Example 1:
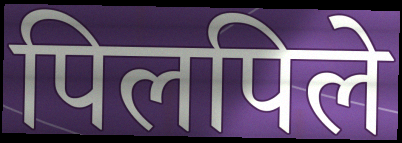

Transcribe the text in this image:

पिलपिले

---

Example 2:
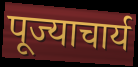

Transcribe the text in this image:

पूज्याचार्य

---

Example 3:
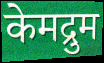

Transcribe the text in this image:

केमद्रुम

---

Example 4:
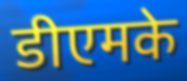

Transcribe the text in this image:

डीएमके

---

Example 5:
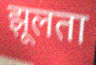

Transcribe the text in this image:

झूलता